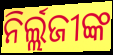
ନିର୍ଲ୍ଲଜୀଙ୍କ